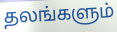
தலங்களும்